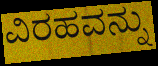
ವಿರಹವನ್ನು